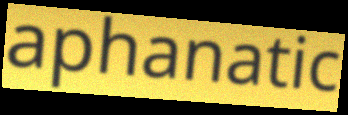
aphanatic